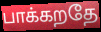
பாக்கறதே